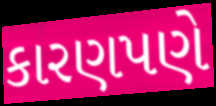
કારણપણે